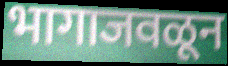
भागाजवळून